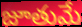
జూతుమే